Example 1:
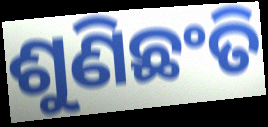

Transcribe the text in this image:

ଶୁଣିଛଂତି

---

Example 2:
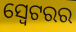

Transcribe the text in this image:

ସ୍ୱେଟରର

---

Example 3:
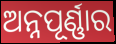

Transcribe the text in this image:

ଅନ୍ନପୂର୍ଣ୍ଣାର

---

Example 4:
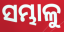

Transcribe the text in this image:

ସମ୍ଭାଳୁ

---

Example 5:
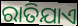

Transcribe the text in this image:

ରାତିଯାଏ